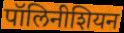
पॉलिनीशियन